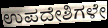
ಉಪದೇಶಿಗಳೇ